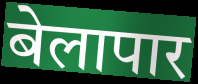
बेलापार